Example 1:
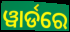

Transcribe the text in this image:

ୱାର୍ଡରେ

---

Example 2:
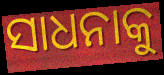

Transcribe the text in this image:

ସାଧନାକୁ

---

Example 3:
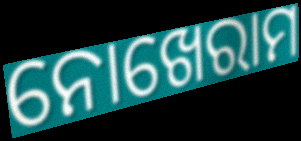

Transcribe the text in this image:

ନୋଖେରାମ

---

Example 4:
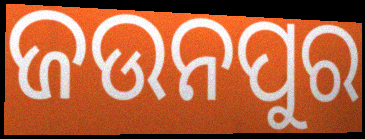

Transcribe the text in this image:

ଜଉନପୁର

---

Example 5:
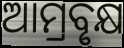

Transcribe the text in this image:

ଆମ୍ରବୃକ୍ଷ